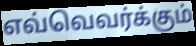
எவ்வெவர்க்கும்